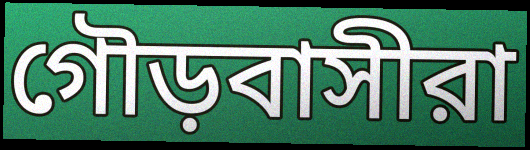
গৌড়বাসীরা